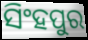
ସିଂହପୁର